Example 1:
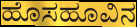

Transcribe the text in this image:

ಹೊಸಹೂವಿನ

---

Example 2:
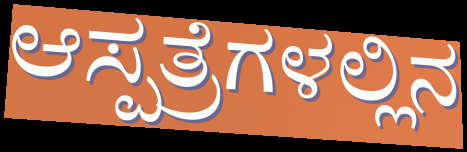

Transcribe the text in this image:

ಆಸ್ಪತ್ರೆಗಳಲ್ಲಿನ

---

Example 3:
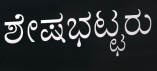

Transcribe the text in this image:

ಶೇಷಭಟ್ಟರು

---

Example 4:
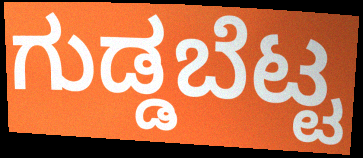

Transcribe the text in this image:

ಗುಡ್ಡಬೆಟ್ಟ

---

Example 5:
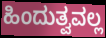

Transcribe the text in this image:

ಹಿಂದುತ್ವವಲ್ಲ